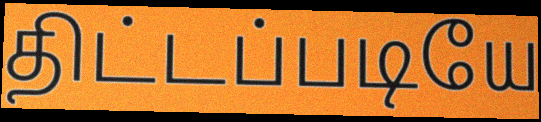
திட்டப்படியே